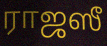
ராஜஸீ